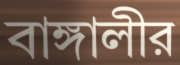
বাঙ্গালীর